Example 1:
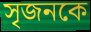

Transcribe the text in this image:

সৃজনকে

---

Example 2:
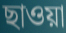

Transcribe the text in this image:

ছাওয়া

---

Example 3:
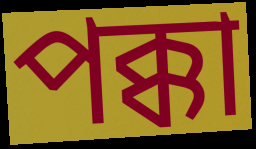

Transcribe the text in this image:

পক্কা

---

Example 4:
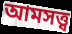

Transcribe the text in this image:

আমসত্ত্ব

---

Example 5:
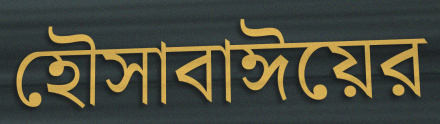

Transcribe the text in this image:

হৌসাবাঈয়ের